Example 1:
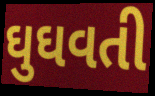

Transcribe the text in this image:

ઘુઘવતી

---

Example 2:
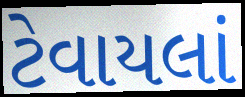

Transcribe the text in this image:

ટેવાયલાં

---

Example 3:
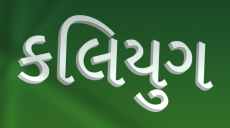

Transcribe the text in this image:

કલિયુગ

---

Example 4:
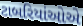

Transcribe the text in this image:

ટાબરિયાંઓએ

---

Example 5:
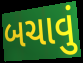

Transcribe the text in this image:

બચાવું